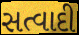
સત્વાદી